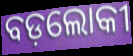
ବଡ଼ଲୋକୀ